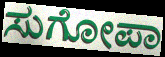
ಸುಗೋಪಾ